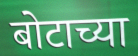
बोटाच्या